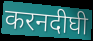
करनदीघी